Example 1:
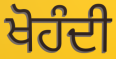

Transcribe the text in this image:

ਖੋਹੰਦੀ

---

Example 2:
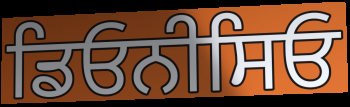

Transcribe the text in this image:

ਡਿਓਨੀਸਿਓ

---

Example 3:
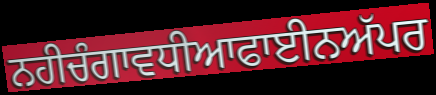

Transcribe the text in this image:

ਨਹੀਚੰਗਾਵਧੀਆਫਾਈਨਅੱਪਰ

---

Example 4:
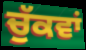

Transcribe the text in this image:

ਚੁੱਕਵਾਂ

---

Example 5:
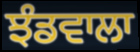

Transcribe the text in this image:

ਝੰਡਵਾਲਾ